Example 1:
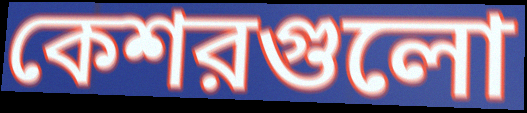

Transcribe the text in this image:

কেশরগুলো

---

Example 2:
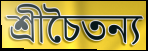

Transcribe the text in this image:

শ্রীচৈতন্য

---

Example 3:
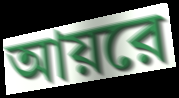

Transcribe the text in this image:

আয়রে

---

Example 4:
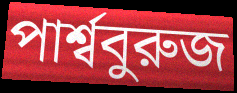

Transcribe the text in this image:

পার্শ্ববুরুজ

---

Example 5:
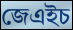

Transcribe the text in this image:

জেএইচ